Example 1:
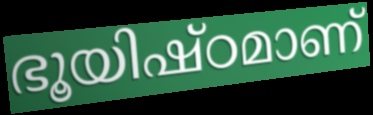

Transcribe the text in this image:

ഭൂയിഷ്ഠമാണ്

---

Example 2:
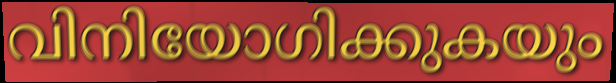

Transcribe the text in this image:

വിനിയോഗിക്കുകയും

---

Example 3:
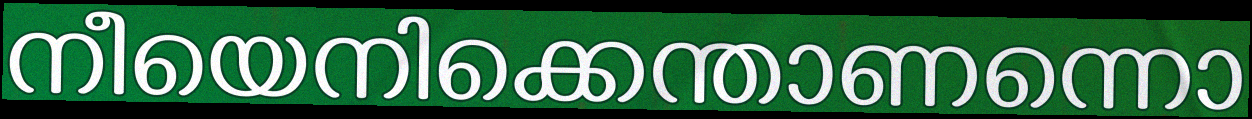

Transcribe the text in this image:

നീയെനിക്കെന്താണന്നൊ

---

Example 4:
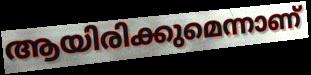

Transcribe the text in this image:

ആയിരിക്കുമെന്നാണ്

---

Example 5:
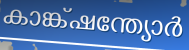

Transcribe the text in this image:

കാങ്ക്ഷന്ത്യോർ